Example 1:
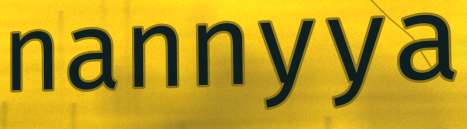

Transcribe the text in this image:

nannyya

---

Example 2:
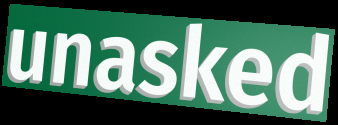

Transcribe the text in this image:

unasked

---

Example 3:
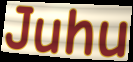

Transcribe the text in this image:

Juhu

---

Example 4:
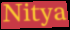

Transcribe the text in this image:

Nitya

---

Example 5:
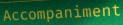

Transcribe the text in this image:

Accompaniment